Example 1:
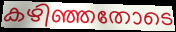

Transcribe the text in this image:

കഴിഞ്ഞതോടെ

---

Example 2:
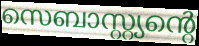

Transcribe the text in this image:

സെബാസ്റ്റ്യന്റെ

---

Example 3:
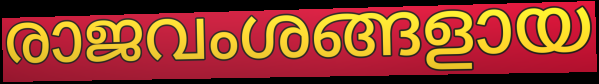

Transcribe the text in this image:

രാജവംശങ്ങളായ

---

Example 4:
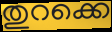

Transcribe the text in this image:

തുറക്കെ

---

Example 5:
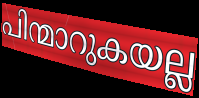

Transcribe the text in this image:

പിന്മാറുകയല്ല